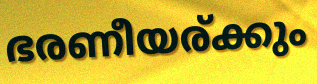
ഭരണീയര്ക്കും